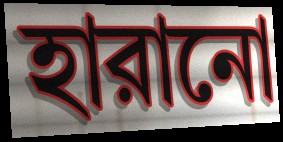
হারানো